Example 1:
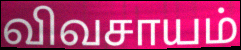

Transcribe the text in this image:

விவசாயம்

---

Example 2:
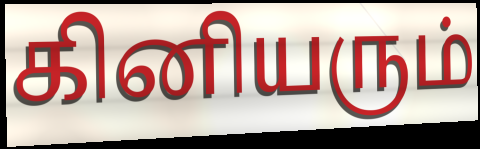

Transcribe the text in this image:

கினியரும்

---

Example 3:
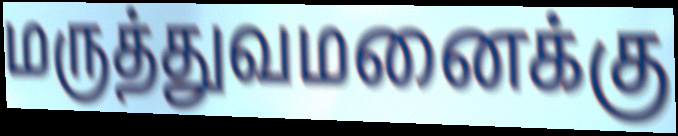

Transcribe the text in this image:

மருத்துவமனைக்கு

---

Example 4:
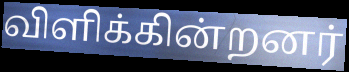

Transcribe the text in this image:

விளிக்கின்றனர்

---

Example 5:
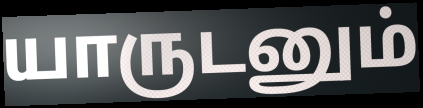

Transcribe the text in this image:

யாருடனும்